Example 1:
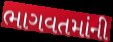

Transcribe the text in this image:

ભાગવતમાંની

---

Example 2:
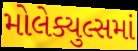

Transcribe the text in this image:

મોલેક્યુલ્સમાં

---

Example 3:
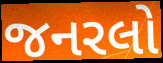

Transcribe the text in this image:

જનરલો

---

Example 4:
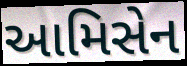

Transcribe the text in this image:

આમિસેન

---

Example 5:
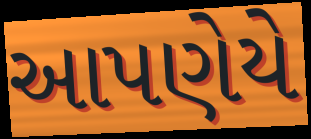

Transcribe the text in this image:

આપણેયે